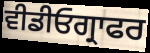
ਵੀਡੀਓਗ੍ਰਾਫਰ